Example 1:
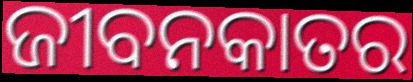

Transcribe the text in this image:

ଜୀବନକାତର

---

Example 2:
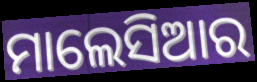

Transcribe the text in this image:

ମାଲେସିଆର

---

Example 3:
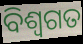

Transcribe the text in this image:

ବିଶ୍ୱଗତ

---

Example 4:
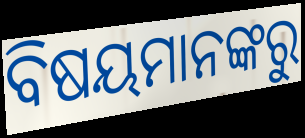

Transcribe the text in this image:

ବିଷୟମାନଙ୍କରୁ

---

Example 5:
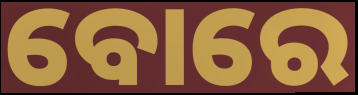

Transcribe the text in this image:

ବୋରେ